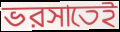
ভরসাতেই